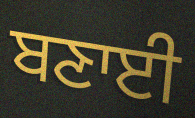
ਬਣਾਈ